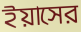
ইয়াসের